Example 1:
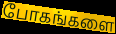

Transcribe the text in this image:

போகங்களை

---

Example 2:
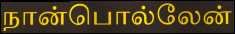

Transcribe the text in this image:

நான்பொல்லேன்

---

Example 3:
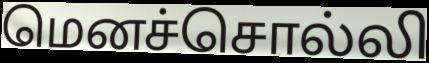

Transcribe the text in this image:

மெனச்சொல்லி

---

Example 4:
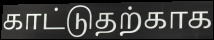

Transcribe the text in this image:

காட்டுதற்காக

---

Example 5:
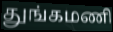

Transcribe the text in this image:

துங்கமணி